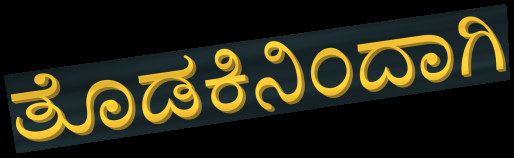
ತೊಡಕಿನಿಂದಾಗಿ